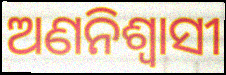
ଅଣନିଶ୍ୱାସୀ